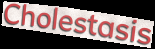
Cholestasis